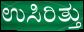
ಉಸಿರಿತ್ತು